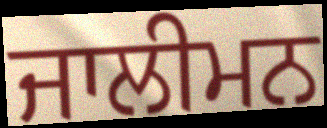
ਜਾਲੀਮਨ